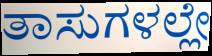
ತಾಸುಗಳಲ್ಲೇ